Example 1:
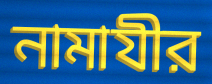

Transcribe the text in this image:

নামাযীর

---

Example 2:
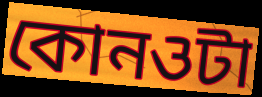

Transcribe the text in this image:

কোনওটা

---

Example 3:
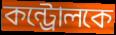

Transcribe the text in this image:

কন্ট্রোলকে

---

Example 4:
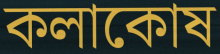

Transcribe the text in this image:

কলাকোষ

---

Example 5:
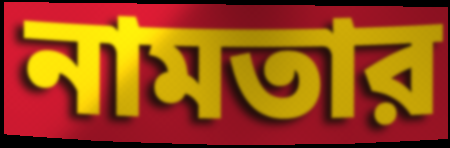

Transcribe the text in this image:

নামতার